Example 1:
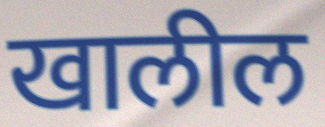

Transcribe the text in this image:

खालील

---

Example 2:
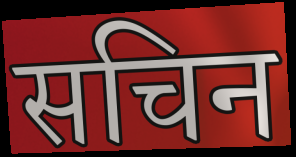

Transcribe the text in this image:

सचिन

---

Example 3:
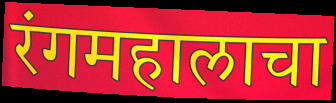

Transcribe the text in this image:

रंगमहालाचा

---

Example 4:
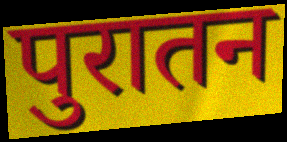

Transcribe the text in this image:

पुरातन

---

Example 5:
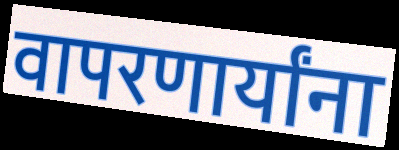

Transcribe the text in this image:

वापरणार्यांना